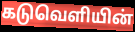
கடுவெளியின்